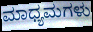
ಮಾಧ್ಯಮಗಳು